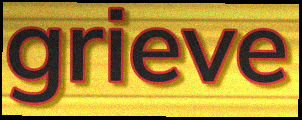
grieve